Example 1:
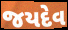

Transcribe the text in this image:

જયદેવ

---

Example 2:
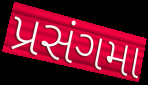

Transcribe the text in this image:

પ્રસંગમા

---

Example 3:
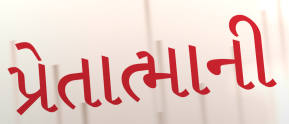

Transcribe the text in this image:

પ્રેતાત્માની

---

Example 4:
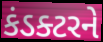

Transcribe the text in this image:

કંડક્ટરને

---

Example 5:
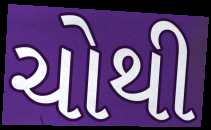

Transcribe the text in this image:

ચોથી